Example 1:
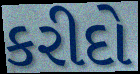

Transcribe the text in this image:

કરીદો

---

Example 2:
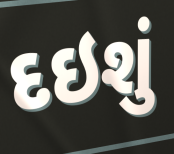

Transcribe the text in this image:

દઇશું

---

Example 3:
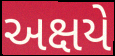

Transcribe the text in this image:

અક્ષયે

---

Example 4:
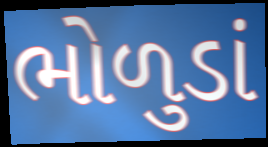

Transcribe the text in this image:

ભોળુડાં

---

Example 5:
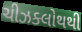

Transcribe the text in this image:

ચીઝક્લોથથી